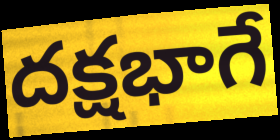
దక్షభాగే